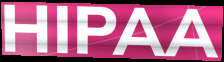
HIPAA